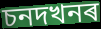
চনদখনৰ